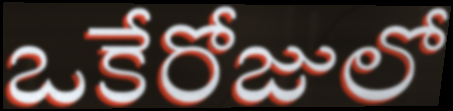
ఒకేరోజులో